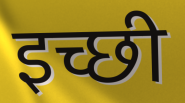
इच्छी